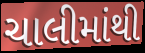
ચાલીમાંથી